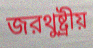
জরথুষ্ট্রীয়